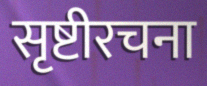
सृष्टीरचना